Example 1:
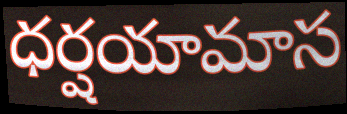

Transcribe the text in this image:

ధర్షయామాస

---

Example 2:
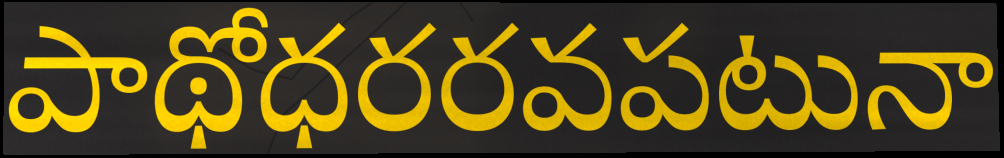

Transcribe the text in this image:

పాథోధరరవపటునా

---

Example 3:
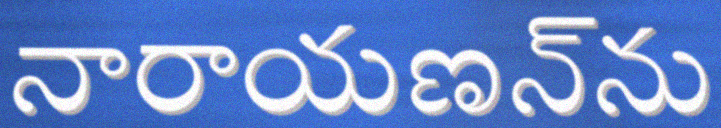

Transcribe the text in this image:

నారాయణన్‌ను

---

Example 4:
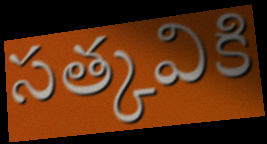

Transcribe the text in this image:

సత్కవికి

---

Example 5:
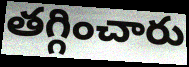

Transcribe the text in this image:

తగ్గించారు